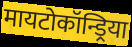
मायटोकॉन्ड्रिया